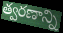
త్వరణాన్ని